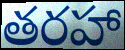
తరహా